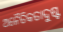
ଅନୈତିକତାଦୁଷ୍ଟ